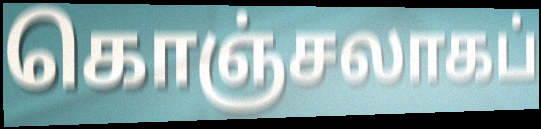
கொஞ்சலாகப்